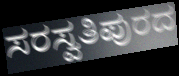
ಸರಸ್ವತಿಪುರದ